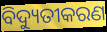
ବିଦ୍ୟୁତୀକରଣ